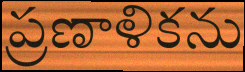
ప్రణాళికను